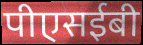
पीएसईबी